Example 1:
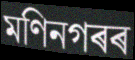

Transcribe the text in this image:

মণিনগৰৰ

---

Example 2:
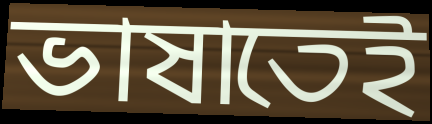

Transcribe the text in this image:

ভাষাতেই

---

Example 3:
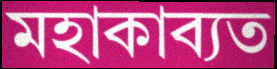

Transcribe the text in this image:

মহাকাব্যত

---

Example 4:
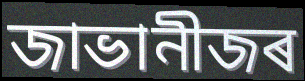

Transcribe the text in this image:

জাভানীজৰ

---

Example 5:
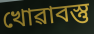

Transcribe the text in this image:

খোৱাবস্তু